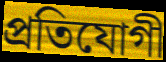
প্ৰতিযোগী